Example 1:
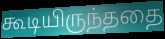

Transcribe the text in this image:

கூடியிருந்ததை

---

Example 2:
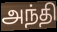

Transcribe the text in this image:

அந்தி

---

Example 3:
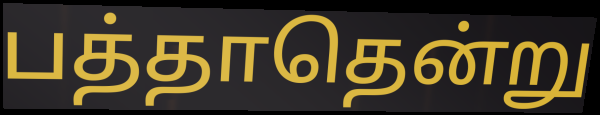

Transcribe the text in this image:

பத்தாதென்று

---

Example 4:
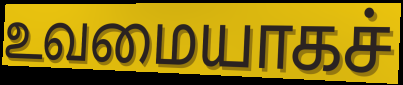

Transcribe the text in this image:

உவமையாகச்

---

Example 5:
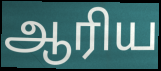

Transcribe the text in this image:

ஆரிய